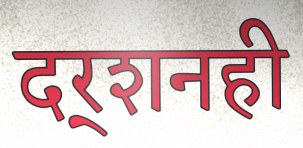
दर्शनही